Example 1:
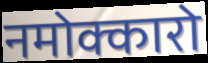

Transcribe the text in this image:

नमोक्कारो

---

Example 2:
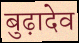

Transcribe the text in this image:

बुढ़ादेव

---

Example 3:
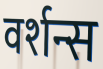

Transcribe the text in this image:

वर्शन्स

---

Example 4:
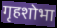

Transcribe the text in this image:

गृहशोभा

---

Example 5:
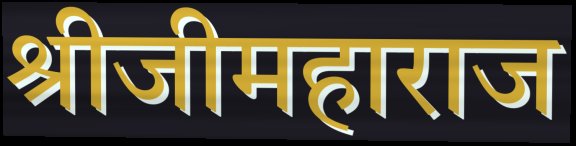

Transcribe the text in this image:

श्रीजीमहाराज